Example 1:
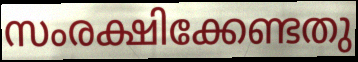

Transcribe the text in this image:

സംരക്ഷിക്കേണ്ടതു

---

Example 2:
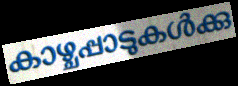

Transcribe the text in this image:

കാഴ്ചപ്പാടുകൾക്കു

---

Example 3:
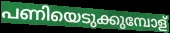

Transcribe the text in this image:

പണിയെടുക്കുമ്പോള്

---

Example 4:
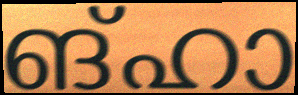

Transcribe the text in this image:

ങ്ഹാ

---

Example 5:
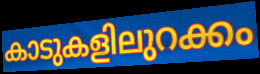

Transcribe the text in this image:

കാടുകളിലുറക്കം